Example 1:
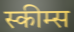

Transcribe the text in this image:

स्‍कीम्‍स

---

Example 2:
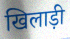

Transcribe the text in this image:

खिलाड़ी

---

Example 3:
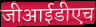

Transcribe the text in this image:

जीआईडीएच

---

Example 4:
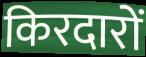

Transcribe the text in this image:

किरदारों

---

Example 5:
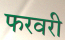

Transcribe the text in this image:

फरवरी